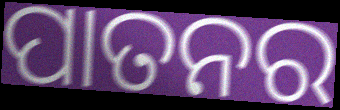
ପାତନର